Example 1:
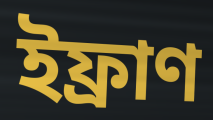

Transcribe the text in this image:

ইফ্ৰাণ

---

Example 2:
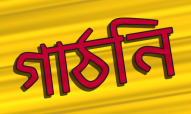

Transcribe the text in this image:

গাঠনি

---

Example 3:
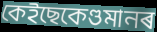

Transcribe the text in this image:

কেইছেকেণ্ডমানৰ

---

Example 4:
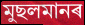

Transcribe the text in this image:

মুছলমানৰ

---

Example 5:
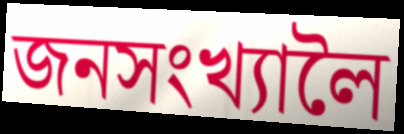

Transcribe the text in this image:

জনসংখ্যালৈ